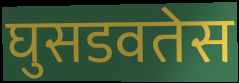
घुसडवतेस